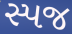
સ્પજ